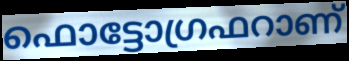
ഫൊട്ടോഗ്രഫറാണ്